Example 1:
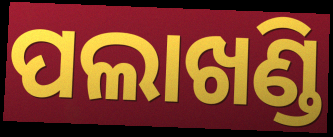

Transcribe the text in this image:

ପଲାଖଣ୍ଡି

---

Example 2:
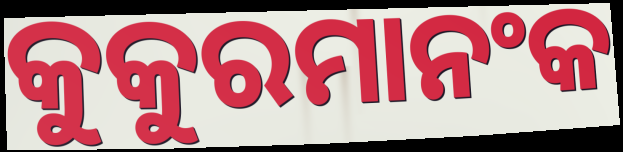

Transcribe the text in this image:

କୁକୁରମାନଂକ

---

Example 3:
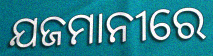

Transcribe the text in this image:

ଯଜମାନୀରେ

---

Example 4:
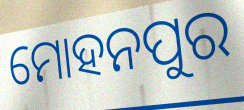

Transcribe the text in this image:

ମୋହନପୁର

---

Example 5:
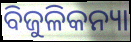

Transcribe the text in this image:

ବିଜୁଳିକନ୍ୟା